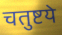
चतुष्टये